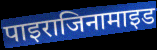
पाइराजिनामाइड